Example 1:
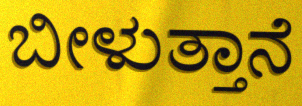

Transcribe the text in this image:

ಬೀಳುತ್ತಾನೆ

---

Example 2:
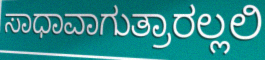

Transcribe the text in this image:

ಸಾಧಾವಾಗುತ್ರಾರಲ್ಲಲಿ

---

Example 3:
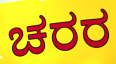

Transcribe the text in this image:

ಚರರ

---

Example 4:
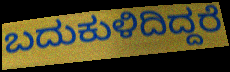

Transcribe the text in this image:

ಬದುಕುಳಿದಿದ್ದರೆ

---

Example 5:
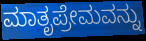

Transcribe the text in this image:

ಮಾತೃಪ್ರೇಮವನ್ನು